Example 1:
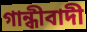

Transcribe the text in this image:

গান্ধীবাদী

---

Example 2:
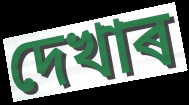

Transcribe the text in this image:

দেখাৰ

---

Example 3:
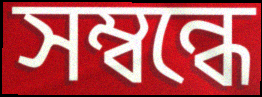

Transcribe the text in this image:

সম্বন্ধে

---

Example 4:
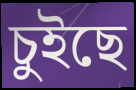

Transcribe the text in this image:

চুইছে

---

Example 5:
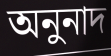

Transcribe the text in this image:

অনুনাদ